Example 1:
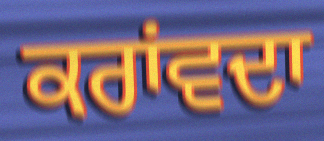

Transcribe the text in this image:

ਕਰਾਂਵਦਾ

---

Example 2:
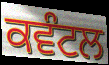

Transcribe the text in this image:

ਕਵੰਟਲ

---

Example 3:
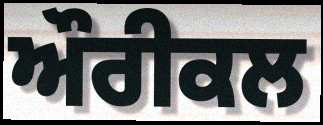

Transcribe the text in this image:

ਔਰੀਕਲ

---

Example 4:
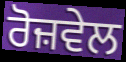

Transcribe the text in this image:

ਰੋਜ਼ਵੇਲ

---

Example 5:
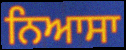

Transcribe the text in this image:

ਨਿਆਸਾ